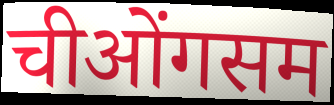
चीओंगसम